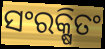
ସଂରକ୍ଷିତଂ